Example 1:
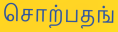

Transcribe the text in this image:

சொற்பதங்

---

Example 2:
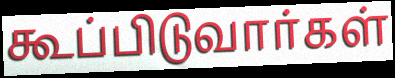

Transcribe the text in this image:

கூப்பிடுவார்கள்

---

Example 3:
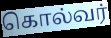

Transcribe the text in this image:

கொல்வர்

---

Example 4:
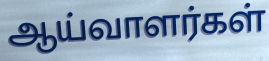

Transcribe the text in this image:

ஆய்வாளர்கள்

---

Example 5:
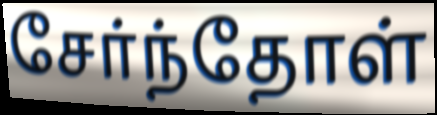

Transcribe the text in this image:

சேர்ந்தோள்